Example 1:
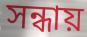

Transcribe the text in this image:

সন্ধায়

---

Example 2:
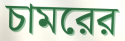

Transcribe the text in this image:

চামরের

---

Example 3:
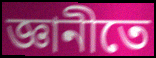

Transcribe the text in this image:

জ্ঞানীতে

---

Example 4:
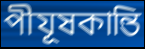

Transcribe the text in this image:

পীযূষকান্তি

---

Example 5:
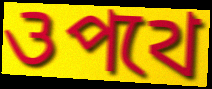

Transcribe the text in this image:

ওপথে